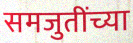
समजुतींच्या